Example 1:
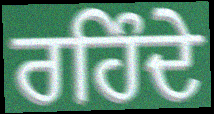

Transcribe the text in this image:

ਰਹਿੰਦੇ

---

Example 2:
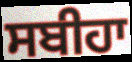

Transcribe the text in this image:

ਸਬੀਹਾ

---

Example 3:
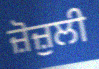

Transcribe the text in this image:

ਜ਼ੋਜ਼ੁਲੀ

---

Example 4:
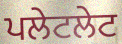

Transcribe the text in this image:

ਪਲੇਟਲੇਟ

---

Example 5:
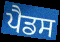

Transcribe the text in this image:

ਪੈਡਸ